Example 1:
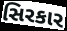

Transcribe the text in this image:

સિરકાર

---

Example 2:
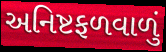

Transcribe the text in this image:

અનિષ્ટફળવાળું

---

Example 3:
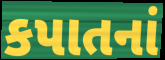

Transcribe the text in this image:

કપાતનાં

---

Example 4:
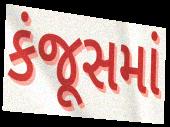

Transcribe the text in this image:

કંજૂસમાં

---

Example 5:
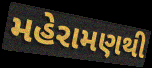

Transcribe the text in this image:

મહેરામણથી